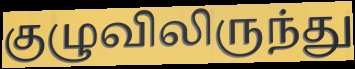
குழுவிலிருந்து